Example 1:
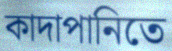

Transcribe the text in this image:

কাদাপানিতে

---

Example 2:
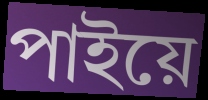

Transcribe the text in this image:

পাইয়ে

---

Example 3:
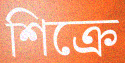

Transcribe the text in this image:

শিক্রে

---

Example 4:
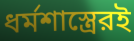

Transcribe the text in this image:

ধর্মশাস্ত্রেরই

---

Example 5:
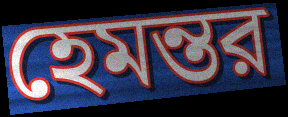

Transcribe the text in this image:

হেমন্তর